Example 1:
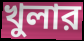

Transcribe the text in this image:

খুলার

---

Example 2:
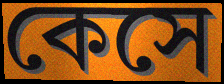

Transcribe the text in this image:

কেসে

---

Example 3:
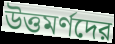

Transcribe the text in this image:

উত্তমর্ণদের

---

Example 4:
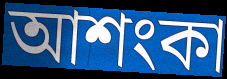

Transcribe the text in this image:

আশংকা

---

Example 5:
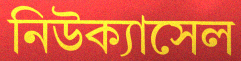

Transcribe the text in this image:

নিউক্যাসেল